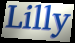
Lilly